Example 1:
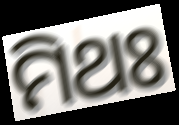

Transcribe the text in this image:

ମିଥଃ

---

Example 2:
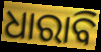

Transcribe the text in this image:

ଧାରାବି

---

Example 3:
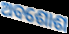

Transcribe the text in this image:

ଅବଶୋଶ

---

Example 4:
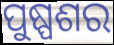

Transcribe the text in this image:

ପୁଷ୍ପଶର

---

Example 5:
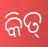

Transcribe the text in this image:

କିତ୍